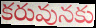
కరువునకు